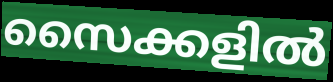
സൈക്കളിൽ